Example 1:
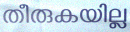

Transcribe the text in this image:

തീരുകയില്ല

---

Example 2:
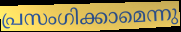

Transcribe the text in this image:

പ്രസംഗിക്കാമെന്നു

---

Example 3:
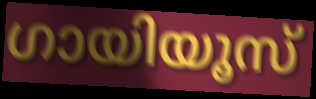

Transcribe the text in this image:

ഗായിയൂസ്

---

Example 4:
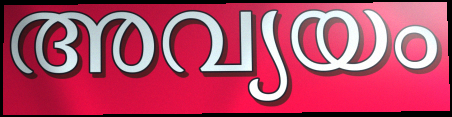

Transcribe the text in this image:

അവ്യയം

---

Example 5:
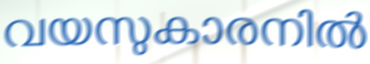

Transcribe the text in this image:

വയസുകാരനിൽ